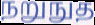
நறுநுத